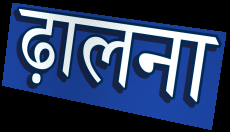
ढ़ालना